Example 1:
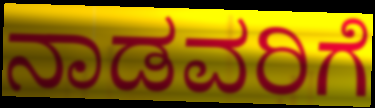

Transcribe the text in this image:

ನಾಡವರಿಗೆ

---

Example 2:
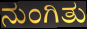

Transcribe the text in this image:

ನುಂಗಿತು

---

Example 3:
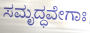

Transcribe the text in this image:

ಸಮೃದ್ಧವೇಗಾಃ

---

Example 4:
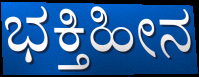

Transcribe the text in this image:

ಭಕ್ತಿಹೀನ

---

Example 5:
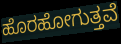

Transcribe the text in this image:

ಹೊರಹೋಗುತ್ತವೆ